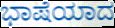
ಭಾಷೆಯಾದ